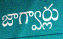
జాగ్వార్లు